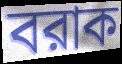
বরাক